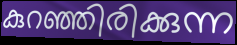
കുറഞ്ഞിരിക്കുന്ന